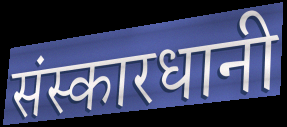
संस्कारधानी